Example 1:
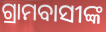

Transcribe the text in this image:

ଗ୍ରାମବାସୀଙ୍କ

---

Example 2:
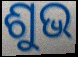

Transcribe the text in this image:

ଶୁଭ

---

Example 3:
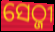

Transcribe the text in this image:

ସେଠ୍ଜୀ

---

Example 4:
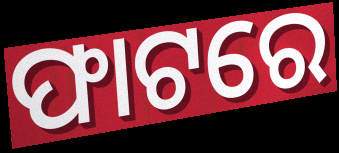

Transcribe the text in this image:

ଫାଟରେ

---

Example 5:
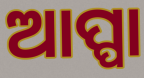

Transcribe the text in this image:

ଆପ୍ପା